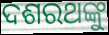
ଦଶରଥଙ୍କୁ